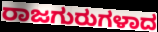
ರಾಜಗುರುಗಳಾದ